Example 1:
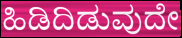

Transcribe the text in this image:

ಹಿಡಿದಿಡುವುದೇ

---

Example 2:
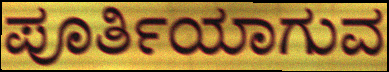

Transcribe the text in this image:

ಪೂರ್ತಿಯಾಗುವ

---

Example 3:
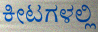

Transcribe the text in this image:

ಕೀಟಗಳಲ್ಲಿ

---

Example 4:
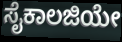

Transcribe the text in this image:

ಸೈಕಾಲಜಿಯೇ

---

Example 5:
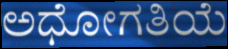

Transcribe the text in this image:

ಅಧೋಗತಿಯೆ